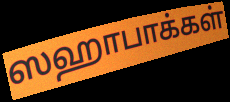
ஸஹாபாக்கள்